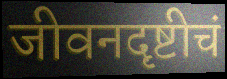
जीवनदृष्टीचं